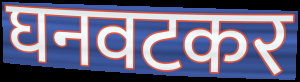
घनवटकर